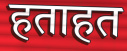
हताहत